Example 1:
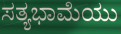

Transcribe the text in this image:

ಸತ್ಯಭಾಮೆಯು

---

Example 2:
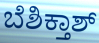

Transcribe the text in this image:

ಬೆಶಿಕ್ತಾಶ್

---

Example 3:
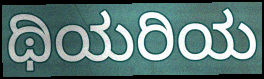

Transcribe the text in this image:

ಥಿಯರಿಯ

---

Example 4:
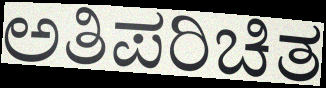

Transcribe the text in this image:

ಅತಿಪರಿಚಿತ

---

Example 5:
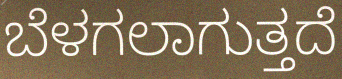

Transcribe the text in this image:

ಬೆಳಗಲಾಗುತ್ತದೆ